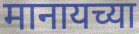
मानायच्या